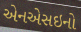
એનએસઇનો